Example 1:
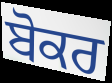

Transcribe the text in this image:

ਬੋਕਰ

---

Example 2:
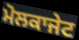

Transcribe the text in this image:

ਮੋਲਕਾਜੇਟ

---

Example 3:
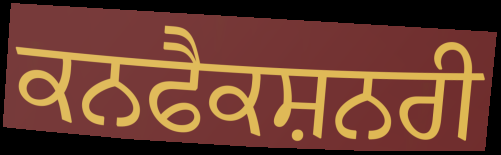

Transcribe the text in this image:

ਕਨਫੈਕਸ਼ਨਰੀ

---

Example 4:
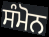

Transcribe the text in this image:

ਸੰਮੋਨ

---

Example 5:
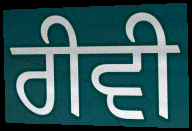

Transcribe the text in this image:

ਰੀਵੀ